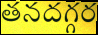
తనదగ్గర